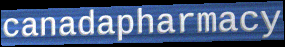
canadapharmacy